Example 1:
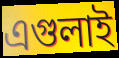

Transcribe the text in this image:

এগুলাই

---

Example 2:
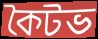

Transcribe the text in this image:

কৈটভ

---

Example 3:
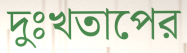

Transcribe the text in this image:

দুঃখতাপের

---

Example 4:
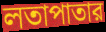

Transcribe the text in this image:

লতাপাতার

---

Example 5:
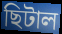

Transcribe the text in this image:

ছিটাল